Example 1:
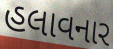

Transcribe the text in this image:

હલાવનાર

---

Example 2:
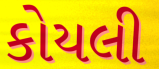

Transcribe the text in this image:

કોયલી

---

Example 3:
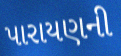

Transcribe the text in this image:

પારાયણની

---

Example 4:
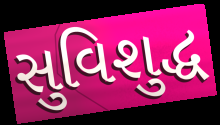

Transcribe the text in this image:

સુવિશુદ્ધ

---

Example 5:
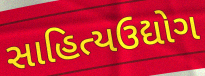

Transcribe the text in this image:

સાહિત્યઉદ્યોગ